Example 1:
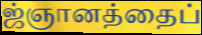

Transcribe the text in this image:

ஜ்ஞானத்தைப்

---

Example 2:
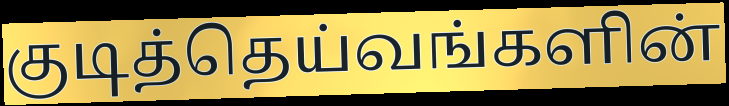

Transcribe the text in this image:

குடித்தெய்வங்களின்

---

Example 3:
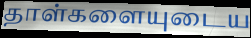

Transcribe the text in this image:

தாள்களையுடைய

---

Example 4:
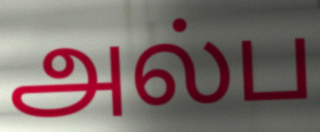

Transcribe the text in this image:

அல்ப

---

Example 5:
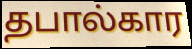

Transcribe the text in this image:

தபால்கார